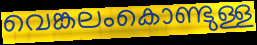
വെങ്കലംകൊണ്ടുള്ള